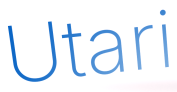
Utari